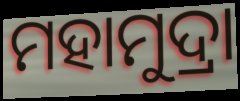
ମହାମୁଦ୍ରା